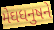
મેઘધનુષને